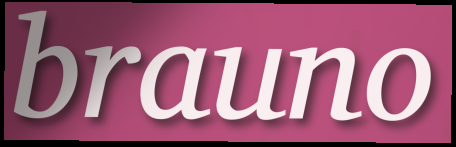
brauno